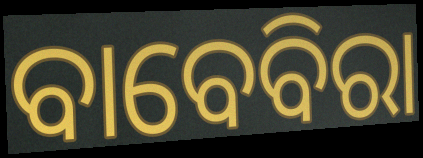
ବାବେବିରା